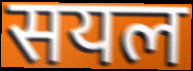
सयल